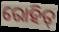
ରୋହିତ୍